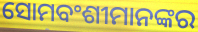
ସୋମବଂଶୀମାନଙ୍କର